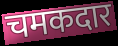
चमकदार